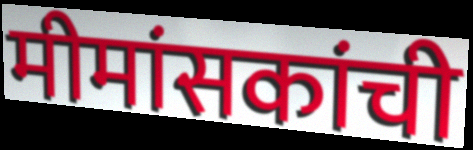
मीमांसकांची